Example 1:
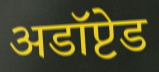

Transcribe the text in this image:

अडॉप्टेड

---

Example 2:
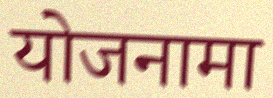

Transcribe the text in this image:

योजनामा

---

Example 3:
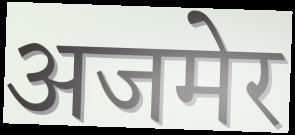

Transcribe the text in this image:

अजमेर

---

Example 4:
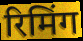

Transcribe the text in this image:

रिमिंग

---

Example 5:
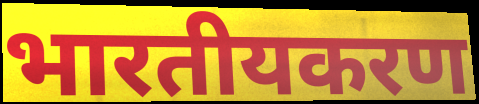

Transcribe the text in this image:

भारतीयकरण